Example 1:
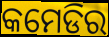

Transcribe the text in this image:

କମେଡିର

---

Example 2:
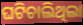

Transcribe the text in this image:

ଘଟିଚାଲିଥିଲା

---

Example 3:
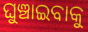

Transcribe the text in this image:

ଘୁଞ୍ଚାଇବାକୁ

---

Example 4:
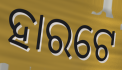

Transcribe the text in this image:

ହାରଟେ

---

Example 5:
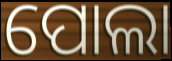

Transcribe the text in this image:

ପୋଲା